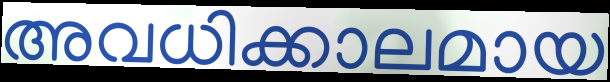
അവധിക്കാലമായ